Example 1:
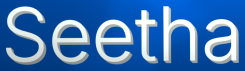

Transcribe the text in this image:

Seetha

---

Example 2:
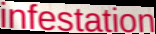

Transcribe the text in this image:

infestation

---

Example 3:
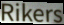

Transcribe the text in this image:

Rikers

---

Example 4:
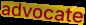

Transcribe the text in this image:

advocate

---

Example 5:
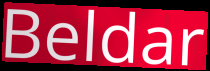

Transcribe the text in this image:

Beldar